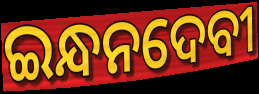
ଇନ୍ଧନଦେବୀ